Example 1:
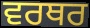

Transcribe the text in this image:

ਵਰਥਰ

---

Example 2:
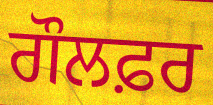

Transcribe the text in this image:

ਗੌਲਫ਼ਰ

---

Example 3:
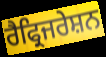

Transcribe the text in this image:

ਰੈਫ੍ਰਿਜਰੇਸ਼ਨ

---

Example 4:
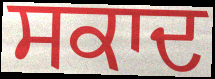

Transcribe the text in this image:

ਸਕਾਦ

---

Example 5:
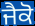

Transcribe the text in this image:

ਜੈਕੋ